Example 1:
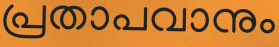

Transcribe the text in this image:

പ്രതാപവാനും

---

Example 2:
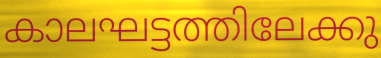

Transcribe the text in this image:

കാലഘട്ടത്തിലേക്കു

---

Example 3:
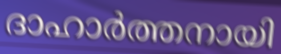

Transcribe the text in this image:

ദാഹാർത്തനായി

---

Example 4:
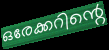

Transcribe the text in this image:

ഒരേക്കറിന്റെ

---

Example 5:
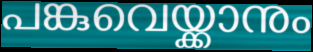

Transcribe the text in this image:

പങ്കുവെയ്ക്കാനും